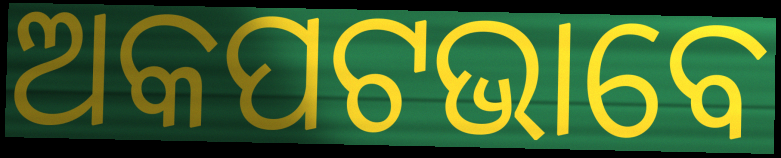
ଅକପଟଭାବେ